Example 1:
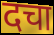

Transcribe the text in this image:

दचा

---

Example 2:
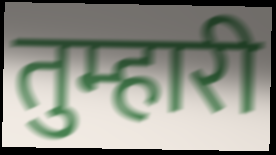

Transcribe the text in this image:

तुम्‍हारी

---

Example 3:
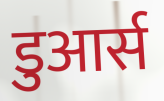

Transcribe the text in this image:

डुआर्स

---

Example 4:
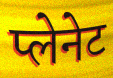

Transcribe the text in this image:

प्लेनेट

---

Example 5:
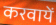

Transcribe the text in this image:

करवायें